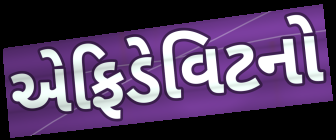
એફિડેવિટનો